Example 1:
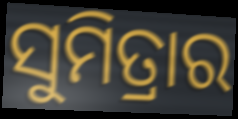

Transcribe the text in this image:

ସୁମିତ୍ରାର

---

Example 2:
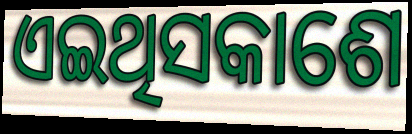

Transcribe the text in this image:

ଏଇଥିସକାଶେ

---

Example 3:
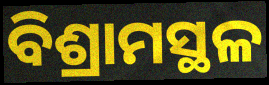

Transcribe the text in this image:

ବିଶ୍ରାମସ୍ଥଳ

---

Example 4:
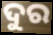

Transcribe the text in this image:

ଦୁର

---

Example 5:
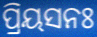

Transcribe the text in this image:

ପ୍ରିୟସନଃ